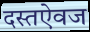
दस्तऐवज